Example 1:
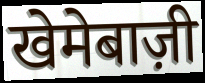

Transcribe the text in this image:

खेमेबाज़ी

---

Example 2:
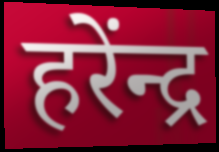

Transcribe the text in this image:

हरेंन्द्र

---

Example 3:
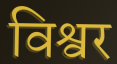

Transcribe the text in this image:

विश्वर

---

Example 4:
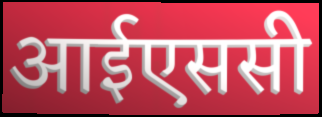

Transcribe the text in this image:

आईएससी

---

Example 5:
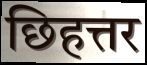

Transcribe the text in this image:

छिहत्तर